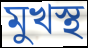
মুখস্থ